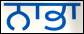
ਨਾਭਾ